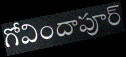
గోవిందాపూర్